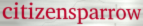
citizensparrow